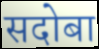
सदोबा